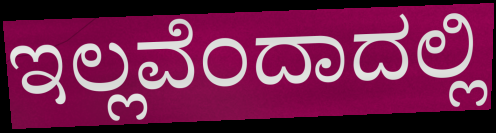
ಇಲ್ಲವೆಂದಾದಲ್ಲಿ